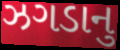
ઝગડાનુ